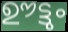
ഊട്ടും